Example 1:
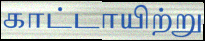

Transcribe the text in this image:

காட்டாயிற்று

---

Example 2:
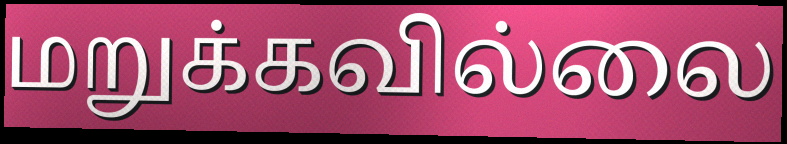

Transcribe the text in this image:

மறுக்கவில்லை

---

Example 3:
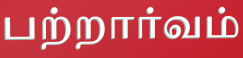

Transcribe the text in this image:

பற்றார்வம்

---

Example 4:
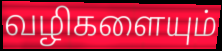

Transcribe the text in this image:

வழிகளையும்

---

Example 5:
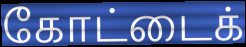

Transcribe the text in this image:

கோட்டைக்